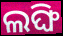
ଲଙ୍ଘି